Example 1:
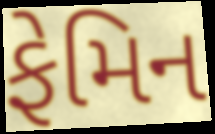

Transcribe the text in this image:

ફેમિન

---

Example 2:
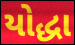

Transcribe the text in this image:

યોદ્ધા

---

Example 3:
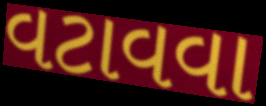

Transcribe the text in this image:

વટાવવા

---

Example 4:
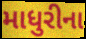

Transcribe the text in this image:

માધુરીના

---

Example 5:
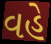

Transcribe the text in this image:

વહે